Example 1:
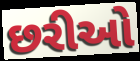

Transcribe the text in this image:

છરીઓ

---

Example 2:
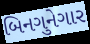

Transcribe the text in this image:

બિનગુનેગાર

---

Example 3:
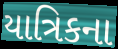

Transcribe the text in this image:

યાત્રિકના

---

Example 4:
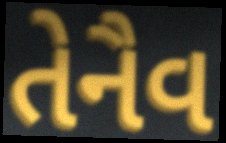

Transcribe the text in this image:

તેનૈવ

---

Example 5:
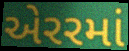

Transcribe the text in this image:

એરરમાં